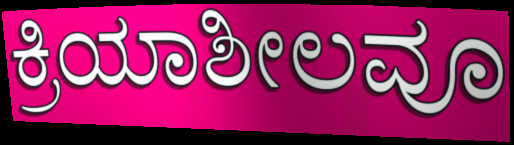
ಕ್ರಿಯಾಶೀಲವೂ